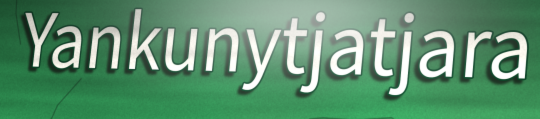
Yankunytjatjara